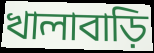
খালাবাড়ি